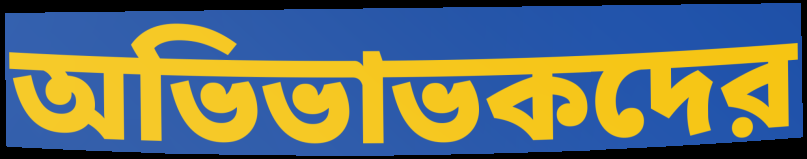
অভিভাভকদের